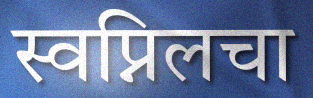
स्वप्निलचा